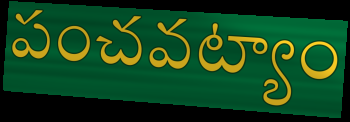
పంచవట్యాం